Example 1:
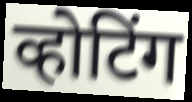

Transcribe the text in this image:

व्होटिंग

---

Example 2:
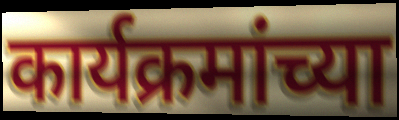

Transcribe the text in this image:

कार्यक्रमांच्या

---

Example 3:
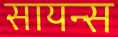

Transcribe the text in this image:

सायन्स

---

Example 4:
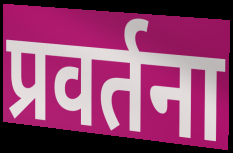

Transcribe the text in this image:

प्रवर्तना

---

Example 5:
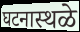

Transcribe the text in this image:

घटनास्थळे